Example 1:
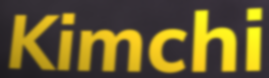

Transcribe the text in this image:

Kimchi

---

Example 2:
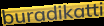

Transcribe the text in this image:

buradikatti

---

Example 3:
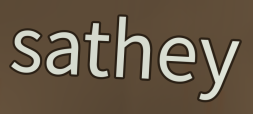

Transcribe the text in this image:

sathey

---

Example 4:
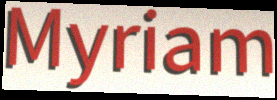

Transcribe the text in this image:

Myriam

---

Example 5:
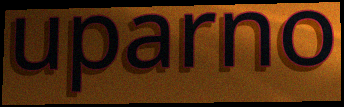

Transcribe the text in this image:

uparno